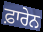
ਫ਼ਾਰੇਨ